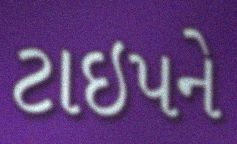
ટાઇપને